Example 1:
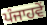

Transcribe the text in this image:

ਪੰਜਾਹਵੇਂ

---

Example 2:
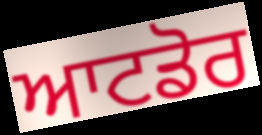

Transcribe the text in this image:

ਆਟਡੋਰ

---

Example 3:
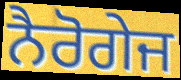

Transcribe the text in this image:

ਨੈਰੋਗੇਜ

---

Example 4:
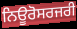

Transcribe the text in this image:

ਨਿਊਰੋਸਰਜਰੀ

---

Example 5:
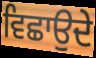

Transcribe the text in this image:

ਵਿਛਾਉਦੇ